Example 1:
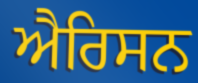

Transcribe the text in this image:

ਐਰਿਸਨ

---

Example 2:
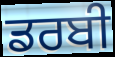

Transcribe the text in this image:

ਡਰਬੀ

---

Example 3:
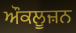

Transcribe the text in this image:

ਔਕਲੂਜ਼ਨ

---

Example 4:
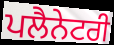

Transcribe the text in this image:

ਪਲੈਨੇਟਰੀ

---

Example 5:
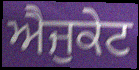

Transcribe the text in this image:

ਐਜੁਕੇਟ